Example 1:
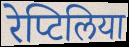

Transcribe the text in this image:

रेप्टिलिया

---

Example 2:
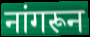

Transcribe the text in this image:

नांगरून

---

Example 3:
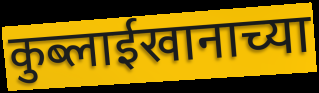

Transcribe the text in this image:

कुब्लाईखानाच्या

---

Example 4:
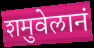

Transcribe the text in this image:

शमुवेलानं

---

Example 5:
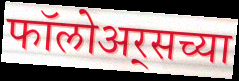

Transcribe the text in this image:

फॉलोअर्सच्या